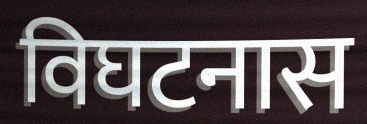
विघटनास